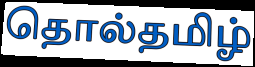
தொல்தமிழ்